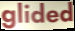
glided